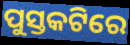
ପୁସ୍ତକଟିରେ